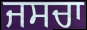
ਜਸਚਾ